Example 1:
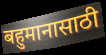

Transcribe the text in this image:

बहुमानासाठी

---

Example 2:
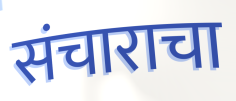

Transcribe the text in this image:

संचाराचा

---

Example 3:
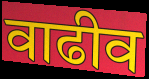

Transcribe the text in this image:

वाढीव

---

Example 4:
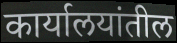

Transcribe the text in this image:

कार्यालयांतील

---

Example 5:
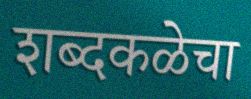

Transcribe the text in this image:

शब्दकळेचा